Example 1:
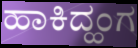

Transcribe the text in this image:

ಹಾಕಿದ್ಹಂಗ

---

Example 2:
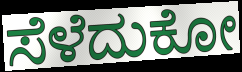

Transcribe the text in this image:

ಸೆಳೆದುಕೋ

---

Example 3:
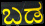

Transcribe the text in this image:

ಬಡ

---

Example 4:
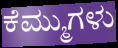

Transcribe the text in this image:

ಕೆಮ್ಮುಗಳು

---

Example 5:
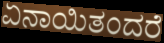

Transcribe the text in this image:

ಏನಾಯಿತಂದರೆ